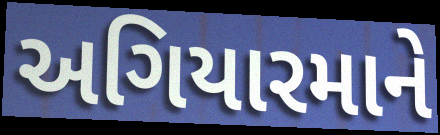
અગિયારમાને